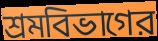
শ্রমবিভাগের